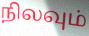
நிலவும்